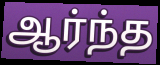
ஆர்ந்த